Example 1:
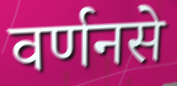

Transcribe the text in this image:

वर्णनसे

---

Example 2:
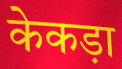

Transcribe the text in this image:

केकड़ा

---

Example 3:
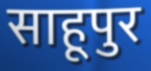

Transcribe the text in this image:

साहूपुर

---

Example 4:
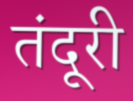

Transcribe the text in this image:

तंदूरी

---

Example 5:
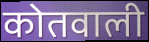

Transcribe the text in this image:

कोतवाली